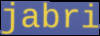
jabri